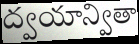
ద్వయాన్వితా